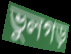
ভুলগড়